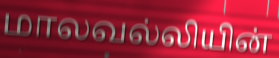
மாலவல்லியின்